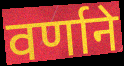
वर्णाने